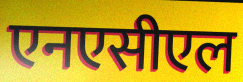
एनएसीएल